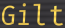
Gilt